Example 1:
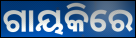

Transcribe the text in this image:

ଗାୟକିରେ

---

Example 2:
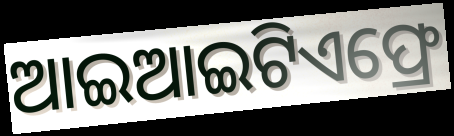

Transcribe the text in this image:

ଆଇଆଇଟିଏଫ୍ରେ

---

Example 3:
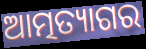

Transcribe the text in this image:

ଆତ୍ମତ୍ୟାଗର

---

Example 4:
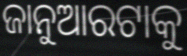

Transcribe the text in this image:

ଜାନୁଆରଟାକୁ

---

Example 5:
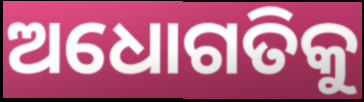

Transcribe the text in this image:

ଅଧୋଗତିକୁ